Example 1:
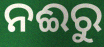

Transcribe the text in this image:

ନଈରୁ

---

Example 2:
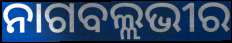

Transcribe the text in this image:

ନାଗବଲ୍ଲଭୀର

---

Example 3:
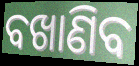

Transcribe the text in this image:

ବଖାଣିବ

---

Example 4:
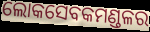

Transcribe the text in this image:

ଲୋକସେବକମଣ୍ଡଳର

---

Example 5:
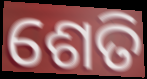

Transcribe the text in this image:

ଶେତି